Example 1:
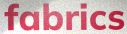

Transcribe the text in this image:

fabrics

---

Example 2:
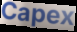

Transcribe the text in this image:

Capex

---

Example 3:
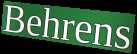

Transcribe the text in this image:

Behrens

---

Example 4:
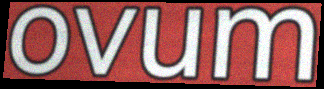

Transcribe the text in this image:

ovum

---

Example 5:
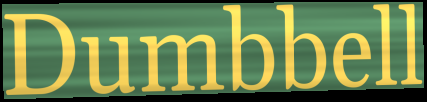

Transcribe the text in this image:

Dumbbell